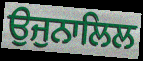
ਉਜੁਨਾਲਿਲ